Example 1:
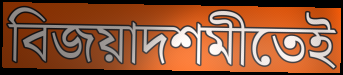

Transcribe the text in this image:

বিজয়াদশমীতেই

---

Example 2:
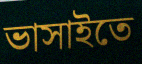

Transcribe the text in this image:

ভাসাইতে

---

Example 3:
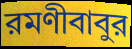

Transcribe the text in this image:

রমণীবাবুর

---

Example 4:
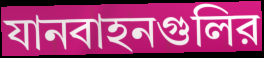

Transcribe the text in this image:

যানবাহনগুলির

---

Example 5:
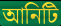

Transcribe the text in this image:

আনিটি